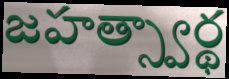
జహత్స్వార్థ